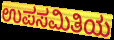
ಉಪಸಮಿತಿಯ